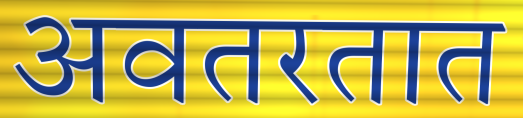
अवतरतात